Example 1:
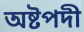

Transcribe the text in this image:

অষ্টপদী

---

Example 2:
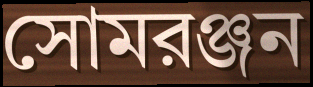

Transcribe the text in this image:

সোমরঞ্জন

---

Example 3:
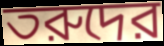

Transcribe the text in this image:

তরুদের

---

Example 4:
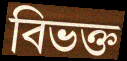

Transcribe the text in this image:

বিভক্ত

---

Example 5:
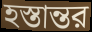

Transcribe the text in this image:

হস্তান্তর